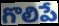
గొలిపే